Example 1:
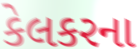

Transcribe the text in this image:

કેલકરના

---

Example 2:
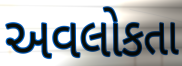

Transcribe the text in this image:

અવલોકતા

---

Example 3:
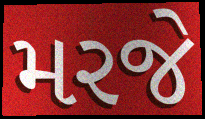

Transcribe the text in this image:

મરજે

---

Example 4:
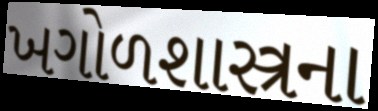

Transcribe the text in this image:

ખગોળશાસ્ત્રના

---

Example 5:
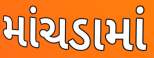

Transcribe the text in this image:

માંચડામાં